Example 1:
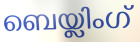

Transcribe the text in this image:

ബെയ്ലിംഗ്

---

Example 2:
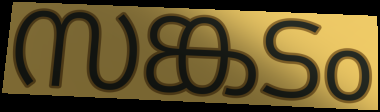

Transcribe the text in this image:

സങ്കടം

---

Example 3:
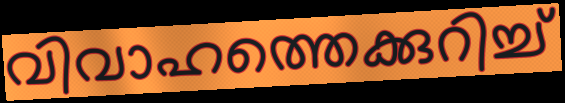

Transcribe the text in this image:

വിവാഹത്തെക്കുറിച്ച്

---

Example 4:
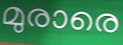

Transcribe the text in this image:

മുരാരെ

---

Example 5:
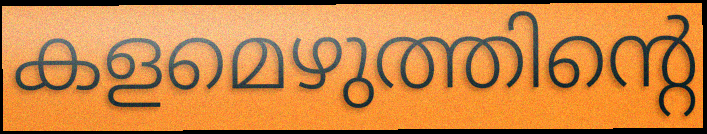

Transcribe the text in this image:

കളമെഴുത്തിന്റെ